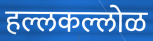
हल्लकल्लोळ